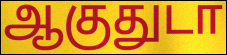
ஆகுதுடா